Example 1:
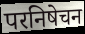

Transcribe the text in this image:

परनिषेचन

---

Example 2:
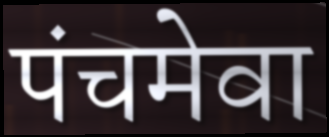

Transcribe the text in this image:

पंचमेवा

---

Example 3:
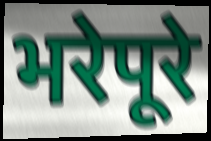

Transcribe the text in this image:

भरेपूरे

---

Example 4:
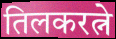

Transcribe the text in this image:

तिलकरत्ने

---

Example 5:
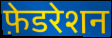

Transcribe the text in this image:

फ़ेडरेशन